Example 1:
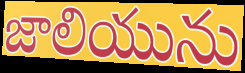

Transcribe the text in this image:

జాలియును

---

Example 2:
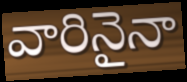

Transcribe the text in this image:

వారినైనా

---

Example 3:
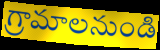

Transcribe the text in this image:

గ్రామాలనుండి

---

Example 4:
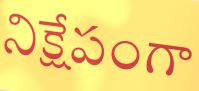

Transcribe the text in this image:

నిక్షేపంగా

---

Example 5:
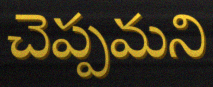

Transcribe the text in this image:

చెప్పమని